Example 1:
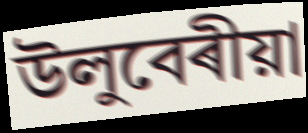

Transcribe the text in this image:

উলুবেৰীয়া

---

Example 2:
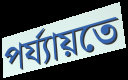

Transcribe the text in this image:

পৰ্য্যায়তে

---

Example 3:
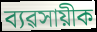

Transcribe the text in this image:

ব্যৱসায়ীক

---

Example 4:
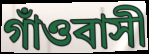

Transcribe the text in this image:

গাঁওবাসী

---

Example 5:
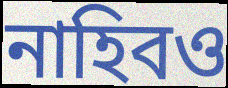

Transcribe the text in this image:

নাহিবও